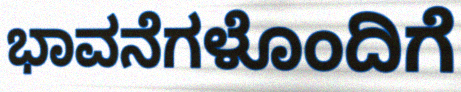
ಭಾವನೆಗಳೊಂದಿಗೆ